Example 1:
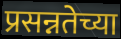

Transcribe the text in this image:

प्रसन्नतेच्या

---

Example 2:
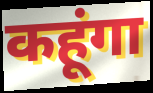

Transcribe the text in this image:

कहूंगा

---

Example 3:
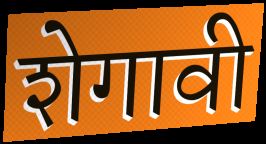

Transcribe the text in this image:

शेगावी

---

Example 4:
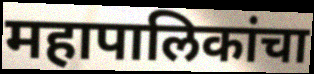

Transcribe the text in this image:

महापालिकांचा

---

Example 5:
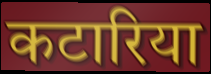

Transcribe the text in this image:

कटारिया